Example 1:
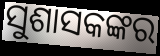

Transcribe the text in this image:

ସୁଶାସକଙ୍କର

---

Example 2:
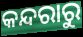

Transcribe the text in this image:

କନ୍ଦରାରୁ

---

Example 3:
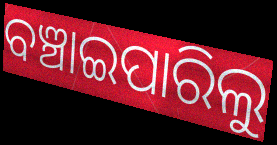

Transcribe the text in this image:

ବଞ୍ଚାଇପାରିଲୁ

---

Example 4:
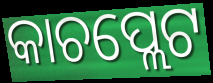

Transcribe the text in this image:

କାଚପ୍ଲେଟ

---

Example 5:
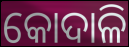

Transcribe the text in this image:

କୋଦାଳି